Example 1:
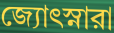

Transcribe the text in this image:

জ্যোৎস্নারা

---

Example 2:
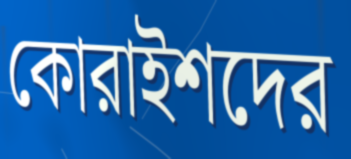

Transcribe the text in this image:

কোরাইশদের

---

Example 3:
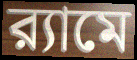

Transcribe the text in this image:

র‍্যামে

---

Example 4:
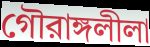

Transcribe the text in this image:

গৌরাঙ্গলীলা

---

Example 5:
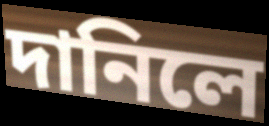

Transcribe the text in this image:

দানিলে